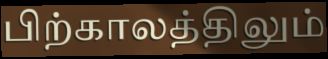
பிற்காலத்திலும்